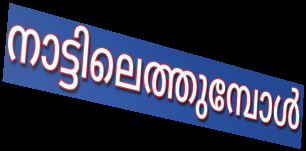
നാട്ടിലെത്തുമ്പോൾ